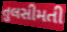
તુલસીમતી